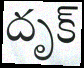
దృక్